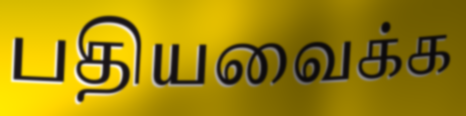
பதியவைக்க